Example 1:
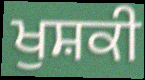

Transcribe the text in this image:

ਖੁਸ਼ਕੀ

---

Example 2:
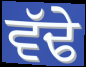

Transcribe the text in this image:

ਵੱਢੇ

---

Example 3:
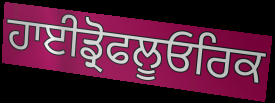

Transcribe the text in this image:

ਹਾਈਡ੍ਰੋਫਲੂਓਰਿਕ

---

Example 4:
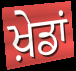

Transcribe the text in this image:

ਖ਼ੇਡਾਂ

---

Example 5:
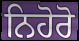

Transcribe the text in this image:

ਨਿਹੋਰੋ